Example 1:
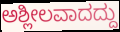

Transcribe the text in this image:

ಅಶ್ಲೀಲವಾದದ್ದು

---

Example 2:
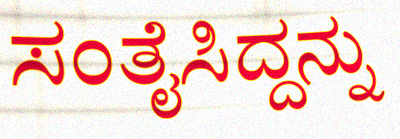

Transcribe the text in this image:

ಸಂತೈಸಿದ್ದನ್ನು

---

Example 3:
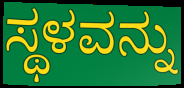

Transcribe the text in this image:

ಸ್ಥಳವನ್ನು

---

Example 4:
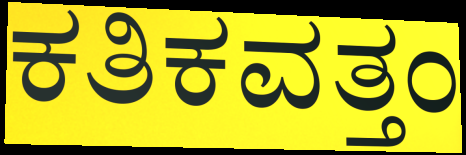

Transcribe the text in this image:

ಕತಿಕವತ್ತಂ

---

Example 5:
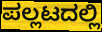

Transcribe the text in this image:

ಪಲ್ಲಟದಲ್ಲಿ